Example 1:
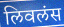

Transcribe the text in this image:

लिवलंस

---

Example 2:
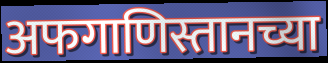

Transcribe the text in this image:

अफगाणिस्तानच्या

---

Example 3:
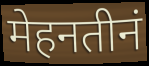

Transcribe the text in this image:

मेहनतीनं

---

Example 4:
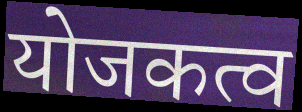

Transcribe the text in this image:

योजकत्व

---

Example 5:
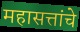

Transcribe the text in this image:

महासत्तांचे